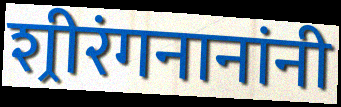
श्रीरंगनानांनी